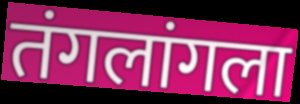
तंगलांगला